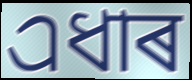
এধাৰ